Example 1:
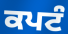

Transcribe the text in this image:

ਕਪਟੰ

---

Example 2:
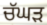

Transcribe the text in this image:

ਚੱਘੜ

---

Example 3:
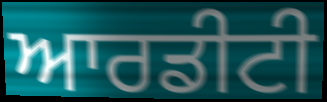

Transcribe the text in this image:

ਆਰਡੀਟੀ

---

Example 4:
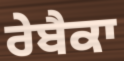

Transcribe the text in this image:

ਰੇਬੈਕਾ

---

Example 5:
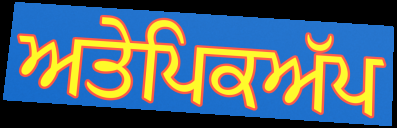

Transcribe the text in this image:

ਅਤੇਪਿਕਅੱਪ